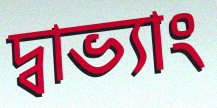
দ্বাভ্যাং